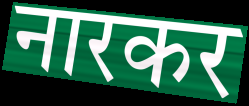
नारकर